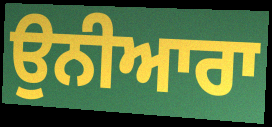
ਉਨੀਆਰਾ